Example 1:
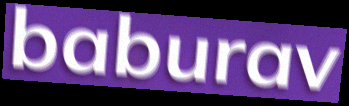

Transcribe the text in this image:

baburav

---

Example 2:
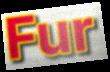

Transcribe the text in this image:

Fur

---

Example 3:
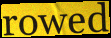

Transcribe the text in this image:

rowed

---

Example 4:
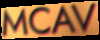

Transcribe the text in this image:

MCAV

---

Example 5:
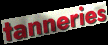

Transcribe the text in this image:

tanneries